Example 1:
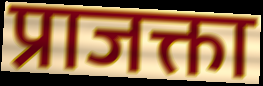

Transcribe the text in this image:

प्राजक्ता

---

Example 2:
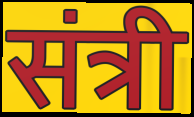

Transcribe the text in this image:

संत्री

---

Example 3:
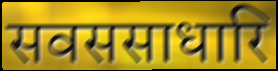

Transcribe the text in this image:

सवससाधारि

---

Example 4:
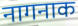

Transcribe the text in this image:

नागनाक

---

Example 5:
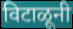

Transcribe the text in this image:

विटाळूनी